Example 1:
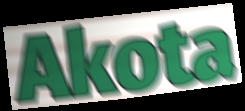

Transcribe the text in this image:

Akota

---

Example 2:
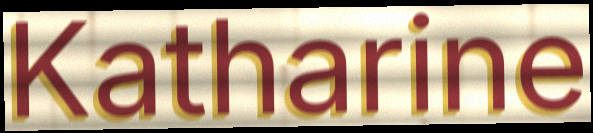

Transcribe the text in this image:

Katharine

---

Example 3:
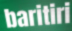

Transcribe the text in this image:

baritiri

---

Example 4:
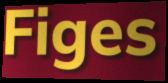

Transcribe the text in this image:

Figes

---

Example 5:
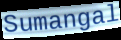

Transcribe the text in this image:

Sumangal